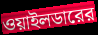
ওয়াইলডারের